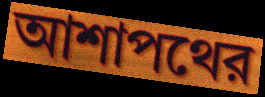
আশাপথের